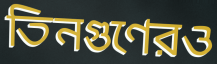
তিনগুণেরও